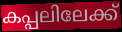
കപ്പലിലേക്ക്